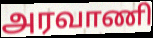
அரவாணி